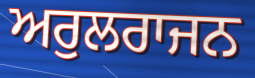
ਅਰੁਲਰਾਜਨ